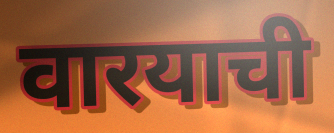
वारयाची